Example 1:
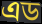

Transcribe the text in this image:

এড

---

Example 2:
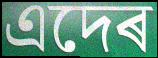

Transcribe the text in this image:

এদেৰ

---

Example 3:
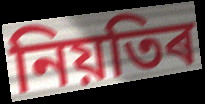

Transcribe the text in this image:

নিয়তিৰ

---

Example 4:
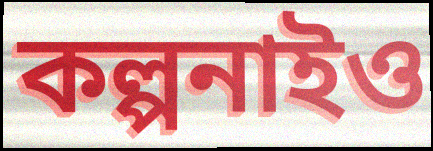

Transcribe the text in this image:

কল্পনাইও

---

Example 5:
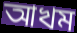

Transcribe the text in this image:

আখম